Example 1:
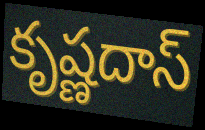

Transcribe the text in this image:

కృష్ణదాస్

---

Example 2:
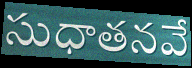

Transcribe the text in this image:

సుధాతనవే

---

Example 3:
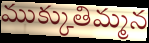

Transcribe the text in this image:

ముక్కుతిమ్మన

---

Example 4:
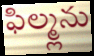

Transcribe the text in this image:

ఫిల్మ్లను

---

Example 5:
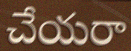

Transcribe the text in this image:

చేయరా